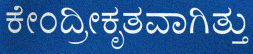
ಕೇಂದ್ರೀಕೃತವಾಗಿತ್ತು